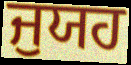
ਜੁਯਹ